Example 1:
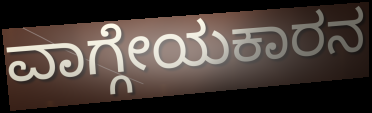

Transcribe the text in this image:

ವಾಗ್ಗೇಯಕಾರನ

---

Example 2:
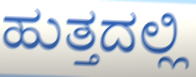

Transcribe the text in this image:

ಹುತ್ತದಲ್ಲಿ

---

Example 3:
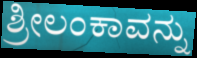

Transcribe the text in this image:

ಶ್ರೀಲಂಕಾವನ್ನು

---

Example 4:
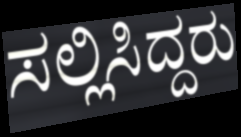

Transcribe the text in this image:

ಸಲ್ಲಿಸಿದ್ದರು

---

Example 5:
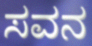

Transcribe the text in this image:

ಸವನ